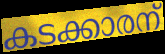
കടക്കാരന്